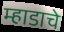
म्हाडाचे